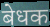
बेधक